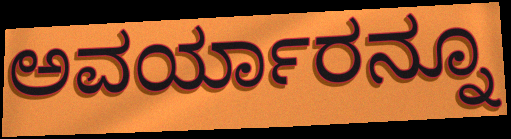
ಅವರ್ಯಾರನ್ನೂ